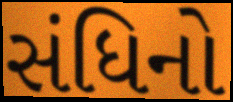
સંધિનો